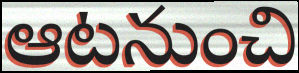
ఆటనుంచి